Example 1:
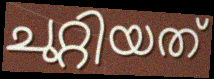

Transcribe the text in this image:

ചുറ്റിയത്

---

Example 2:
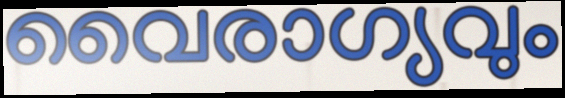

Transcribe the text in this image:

വൈരാഗ്യവും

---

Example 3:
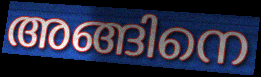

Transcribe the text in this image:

അങ്ങിനെ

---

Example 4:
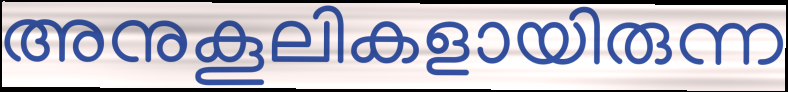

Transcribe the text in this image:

അനുകൂലികളായിരുന്ന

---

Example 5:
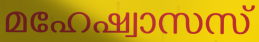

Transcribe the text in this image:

മഹേഷ്വാസസ്